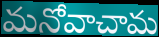
మనోవాచామ